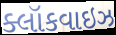
ક્લૉકવાઇઝ